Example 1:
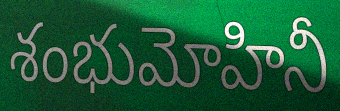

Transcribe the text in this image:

శంభుమోహినీ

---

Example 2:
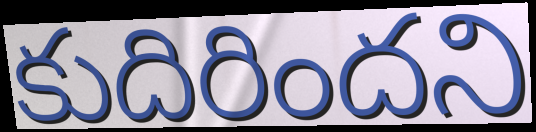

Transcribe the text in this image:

కుదిరిందని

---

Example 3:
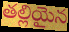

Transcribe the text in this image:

తల్లియైన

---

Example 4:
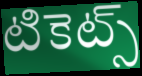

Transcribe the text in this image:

టికెట్స్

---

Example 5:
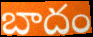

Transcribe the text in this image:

బాదం